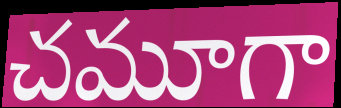
చమూగా